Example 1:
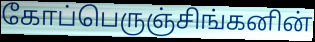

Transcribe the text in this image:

கோப்பெருஞ்சிங்கனின்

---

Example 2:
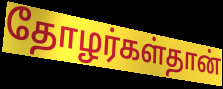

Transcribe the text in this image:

தோழர்கள்தான்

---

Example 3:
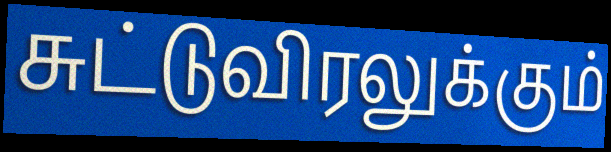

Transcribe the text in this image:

சுட்டுவிரலுக்கும்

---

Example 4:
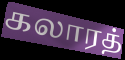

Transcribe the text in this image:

கலாரத்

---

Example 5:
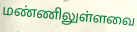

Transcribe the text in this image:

மண்ணிலுள்ளவை